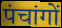
पंचांगों